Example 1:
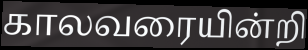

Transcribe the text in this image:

காலவரையின்றி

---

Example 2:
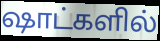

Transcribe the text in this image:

ஷாட்களில்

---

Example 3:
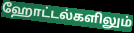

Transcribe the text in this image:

ஹோட்டல்களிலும்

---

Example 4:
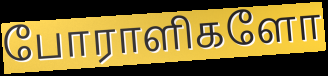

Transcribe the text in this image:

போராளிகளோ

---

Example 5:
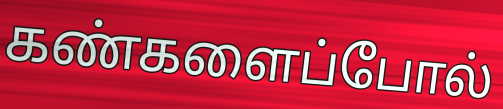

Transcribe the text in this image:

கண்களைப்போல்